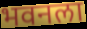
भवनला